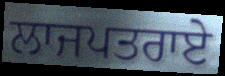
ਲਾਜਪਤਰਾਏ